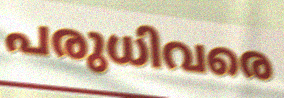
പരുധിവരെ